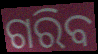
ଗରିବ